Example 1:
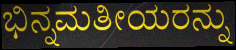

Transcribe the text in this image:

ಭಿನ್ನಮತೀಯರನ್ನು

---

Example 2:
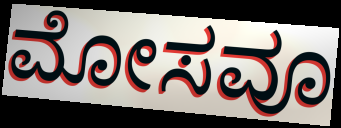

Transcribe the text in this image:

ಮೋಸವೂ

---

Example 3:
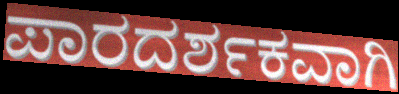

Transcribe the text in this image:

ಪಾರದರ್ಶಕವಾಗಿ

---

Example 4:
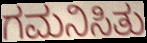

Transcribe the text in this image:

ಗಮನಿಸಿತು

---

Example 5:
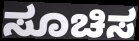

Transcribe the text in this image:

ಸೂಚಿಸ